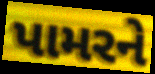
પામરને